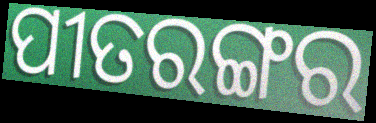
ପୀତରଙ୍ଗର